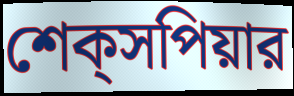
শেক্‌সপিয়ার